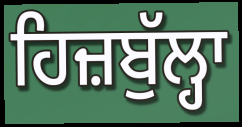
ਹਿਜ਼ਬੁੱਲ੍ਹਾ